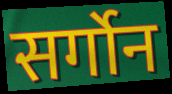
सर्गोन